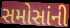
સમોસાંની